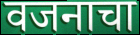
वजनाचा